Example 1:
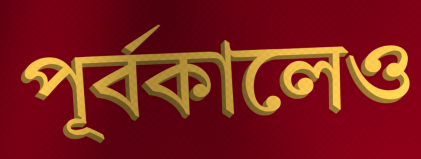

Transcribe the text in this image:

পূর্বকালেও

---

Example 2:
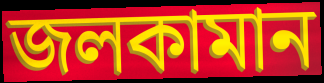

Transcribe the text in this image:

জলকামান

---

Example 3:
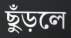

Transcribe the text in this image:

ছুঁড়লে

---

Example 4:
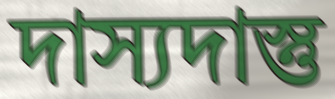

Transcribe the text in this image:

দাস্যদাস্তু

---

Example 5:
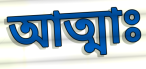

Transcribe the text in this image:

আত্মাঃ